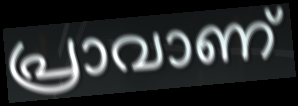
പ്രാവാണ്